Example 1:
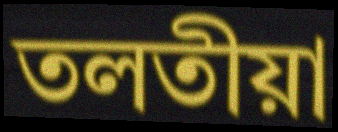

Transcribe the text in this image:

তলতীয়া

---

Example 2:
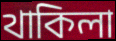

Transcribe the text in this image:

থাকিলা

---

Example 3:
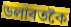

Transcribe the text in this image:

ডলাৰতকৈ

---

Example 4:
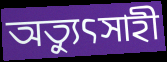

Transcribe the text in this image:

অত্যুৎসাহী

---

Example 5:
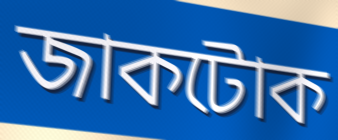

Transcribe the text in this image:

জাকটোক